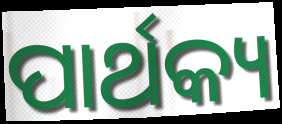
ପାର୍ଥକ୍ୟ